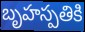
బృహస్పతికి